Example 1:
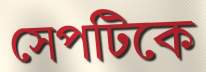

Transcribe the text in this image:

সেপটিকে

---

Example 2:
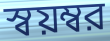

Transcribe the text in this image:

স্বয়ম্বর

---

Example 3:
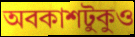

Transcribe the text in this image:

অবকাশটুকুও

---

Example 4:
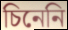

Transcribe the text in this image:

চিনেনি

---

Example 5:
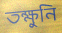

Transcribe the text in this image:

তক্ষুনি